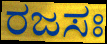
ರಜಸಃ